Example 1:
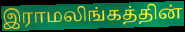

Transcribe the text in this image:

இராமலிங்கத்தின்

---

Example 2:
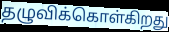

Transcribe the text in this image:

தழுவிக்கொள்கிறது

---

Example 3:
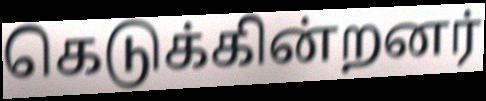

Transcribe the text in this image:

கெடுக்கின்றனர்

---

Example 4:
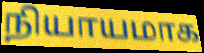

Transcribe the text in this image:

நியாயமாக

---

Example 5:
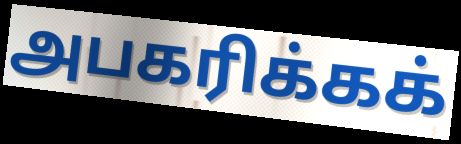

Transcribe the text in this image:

அபகரிக்கக்